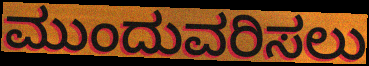
ಮುಂದುವರಿಸಲು